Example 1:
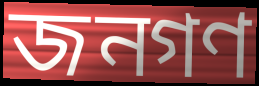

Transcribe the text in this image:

জনগণ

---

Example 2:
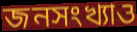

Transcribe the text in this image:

জনসংখ্যাও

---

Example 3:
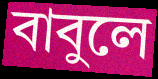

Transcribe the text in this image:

বাবুলে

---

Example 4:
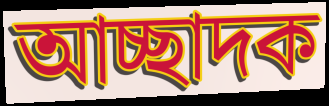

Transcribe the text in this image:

আচ্ছাদক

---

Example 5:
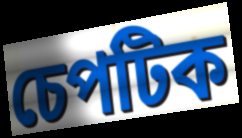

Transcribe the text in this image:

চেপটিক